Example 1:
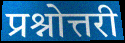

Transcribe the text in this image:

प्रश्नोत्तरी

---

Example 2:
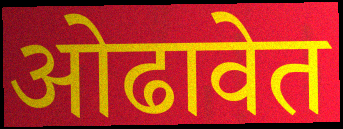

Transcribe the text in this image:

ओढावेत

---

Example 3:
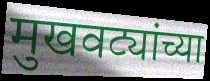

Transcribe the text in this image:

मुखवट्यांच्या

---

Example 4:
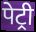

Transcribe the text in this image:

पेट्री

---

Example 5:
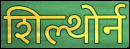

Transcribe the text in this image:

शिल्थोर्न